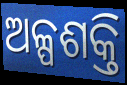
ଅଳ୍ପଶକ୍ତି